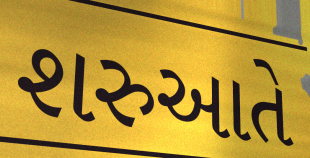
શરુઆતે